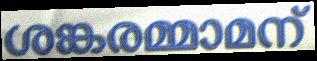
ശങ്കരമ്മാമന്